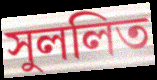
সুললিত